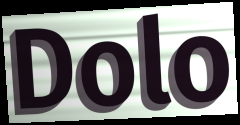
Dolo